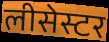
लीसेस्टर